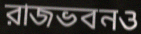
রাজভবনও